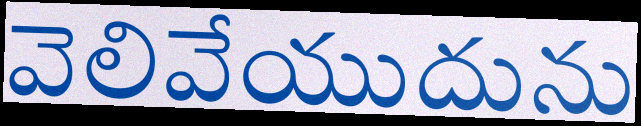
వెలివేయుదును